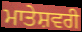
ਮਾਤੇਸ਼ਵਰੀ